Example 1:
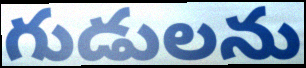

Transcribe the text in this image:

గుడులను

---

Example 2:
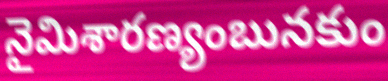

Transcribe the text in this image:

నైమిశారణ్యంబునకుం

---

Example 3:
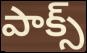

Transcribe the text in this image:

పాక్స్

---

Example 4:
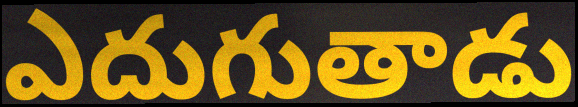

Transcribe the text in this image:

ఎదుగుతాడు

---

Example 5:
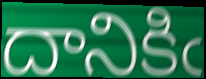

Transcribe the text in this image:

దానికిఁ